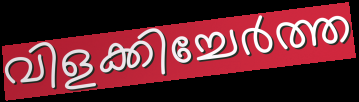
വിളക്കിച്ചേർത്ത